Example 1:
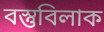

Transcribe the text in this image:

বস্তুবিলাক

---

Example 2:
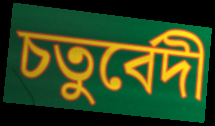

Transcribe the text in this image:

চতুৰ্বেদী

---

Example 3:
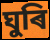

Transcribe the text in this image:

ঘুৰি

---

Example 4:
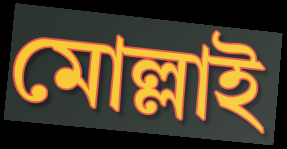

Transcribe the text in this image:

মোল্লাই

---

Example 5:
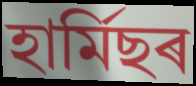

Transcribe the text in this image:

হাৰ্মিছৰ